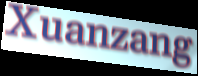
Xuanzang